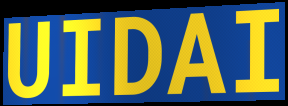
UIDAI